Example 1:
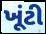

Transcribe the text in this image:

ખૂંટી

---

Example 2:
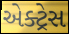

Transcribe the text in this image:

એક્ટ્રેસ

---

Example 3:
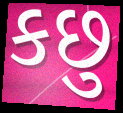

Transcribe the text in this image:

કછુ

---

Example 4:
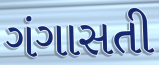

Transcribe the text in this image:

ગંગાસતી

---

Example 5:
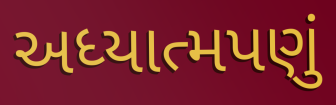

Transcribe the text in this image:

અધ્યાત્મપણું